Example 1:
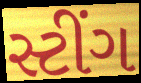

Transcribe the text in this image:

સ્ટીંગ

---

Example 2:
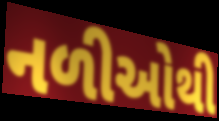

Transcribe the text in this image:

નળીઓથી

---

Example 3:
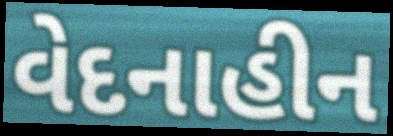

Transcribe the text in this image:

વેદનાહીન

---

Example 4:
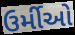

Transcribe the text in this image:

ઉર્મીઓ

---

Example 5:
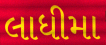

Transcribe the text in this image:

લાધીમા